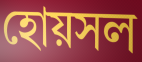
হোয়সল